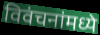
विवंचनांमध्ये